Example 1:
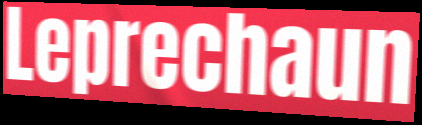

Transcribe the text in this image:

Leprechaun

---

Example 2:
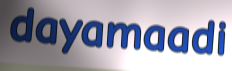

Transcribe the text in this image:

dayamaadi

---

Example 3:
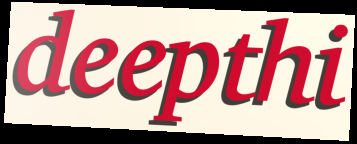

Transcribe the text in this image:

deepthi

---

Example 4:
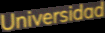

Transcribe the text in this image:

Universidad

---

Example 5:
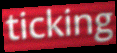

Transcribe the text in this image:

ticking